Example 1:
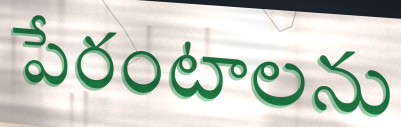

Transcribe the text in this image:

పేరంటాలను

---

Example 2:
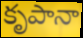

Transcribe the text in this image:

కృపానా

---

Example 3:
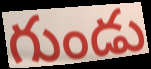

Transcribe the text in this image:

గుండు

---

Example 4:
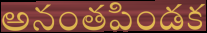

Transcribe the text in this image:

అనంతపిండక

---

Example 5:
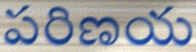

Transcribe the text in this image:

పరిణయ